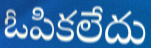
ఓపికలేదు